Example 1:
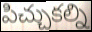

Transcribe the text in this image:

పిచ్చుకల్ని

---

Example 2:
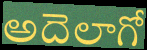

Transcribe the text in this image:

అదెలాగో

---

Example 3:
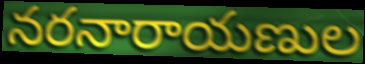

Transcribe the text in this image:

నరనారాయణుల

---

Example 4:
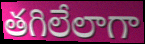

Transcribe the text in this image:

తగిలేలాగా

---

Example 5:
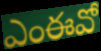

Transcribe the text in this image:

ఎంఈవో